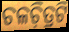
ଚଳଚ଼ିତ୍ରଟି